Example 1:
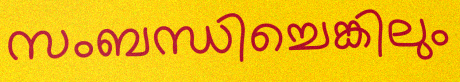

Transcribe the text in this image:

സംബന്ധിച്ചെങ്കിലും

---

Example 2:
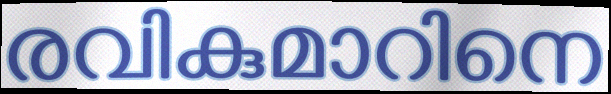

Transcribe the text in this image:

രവികുമാറിനെ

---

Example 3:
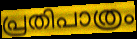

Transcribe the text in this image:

പ്രതിപാത്രം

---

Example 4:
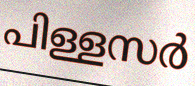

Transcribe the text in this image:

പിള്ളസർ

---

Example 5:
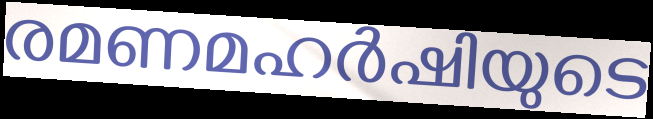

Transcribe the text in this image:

രമണമഹർഷിയുടെ